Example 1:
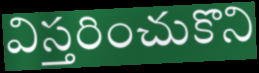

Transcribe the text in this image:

విస్తరించుకొని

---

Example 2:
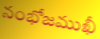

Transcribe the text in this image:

నంభోజముఖీ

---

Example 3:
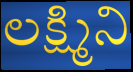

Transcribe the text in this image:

లక్ష్మిని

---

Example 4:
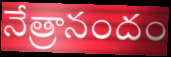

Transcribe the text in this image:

నేత్రానందం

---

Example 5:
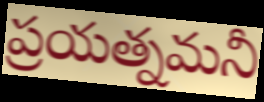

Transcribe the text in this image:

ప్రయత్నమనీ